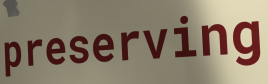
preserving